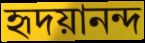
হৃদয়ানন্দ